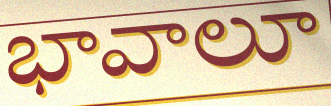
భావాలూ